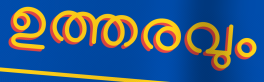
ഉത്തരവും